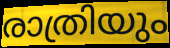
രാത്രിയും